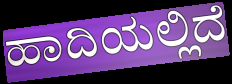
ಹಾದಿಯಲ್ಲಿದೆ